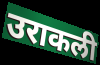
उराकली